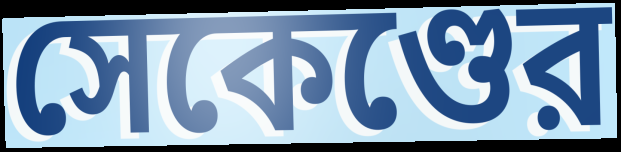
সেকেণ্ডের